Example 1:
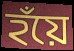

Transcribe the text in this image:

হঁয়ে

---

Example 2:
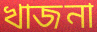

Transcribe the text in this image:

খাজনা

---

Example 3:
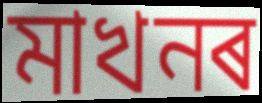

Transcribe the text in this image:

মাখনৰ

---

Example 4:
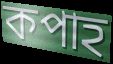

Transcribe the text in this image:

কপাহ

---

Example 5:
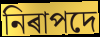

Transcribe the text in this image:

নিৰাপদে